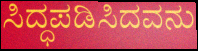
ಸಿದ್ಧಪಡಿಸಿದವನು